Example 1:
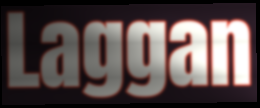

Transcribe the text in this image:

Laggan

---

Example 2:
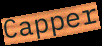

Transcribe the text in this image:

Capper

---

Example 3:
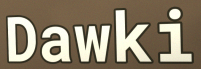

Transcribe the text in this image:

Dawki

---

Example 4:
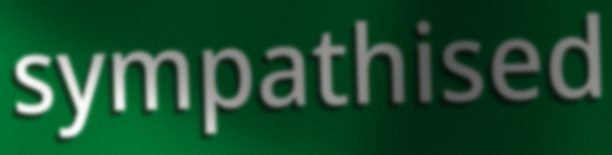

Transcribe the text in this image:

sympathised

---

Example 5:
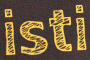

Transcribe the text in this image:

isti